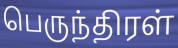
பெருந்திரள்